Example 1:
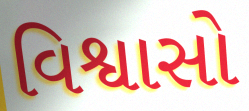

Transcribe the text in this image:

વિશ્વાસો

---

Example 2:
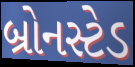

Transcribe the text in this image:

બ્રોનસ્ટેડ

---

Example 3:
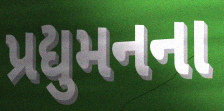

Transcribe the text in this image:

પ્રદ્યુમનના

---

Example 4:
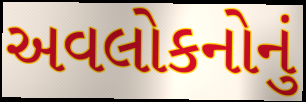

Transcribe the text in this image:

અવલોકનોનું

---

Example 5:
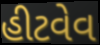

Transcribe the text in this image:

હીટવેવ